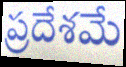
ప్రదేశమే